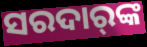
ସରଦାର୍‍ଙ୍କ